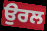
ਉਰਲ